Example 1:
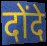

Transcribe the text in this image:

दोंदे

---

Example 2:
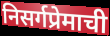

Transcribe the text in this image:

निसर्गप्रेमाची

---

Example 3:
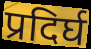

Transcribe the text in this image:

प्रदिर्घ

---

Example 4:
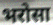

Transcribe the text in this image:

भरोसा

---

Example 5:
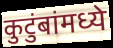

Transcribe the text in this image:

कुटुंबांमध्ये